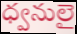
ధ్వనులై